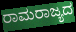
ರಾಮರಾಜ್ಯದ